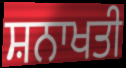
ਸ਼ਨਾਖਤੀ